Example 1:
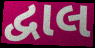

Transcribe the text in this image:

દ્વાલ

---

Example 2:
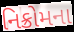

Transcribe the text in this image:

નિક્રોમના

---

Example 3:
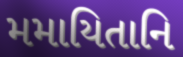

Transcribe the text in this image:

મમાયિતાનિ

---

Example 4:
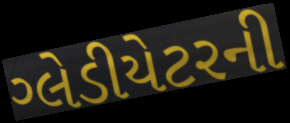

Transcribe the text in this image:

ગ્લેડીયેટરની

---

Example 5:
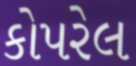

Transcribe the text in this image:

કોપરેલ